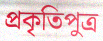
প্রকৃতিপুত্র